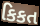
કિકત